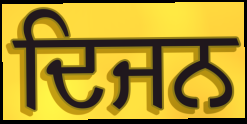
ਦਿਜਨ